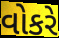
વોકરે